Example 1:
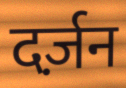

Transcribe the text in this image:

दर्ज़न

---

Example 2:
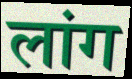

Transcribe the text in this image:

लांग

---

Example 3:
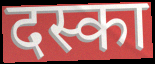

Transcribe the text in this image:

दस्का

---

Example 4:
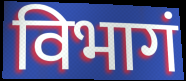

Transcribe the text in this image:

विभागं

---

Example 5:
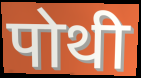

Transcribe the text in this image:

पोथी